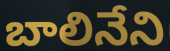
బాలినేని